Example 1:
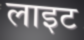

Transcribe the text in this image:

लाइट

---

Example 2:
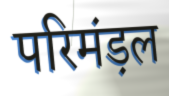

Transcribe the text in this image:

परिमंड़ल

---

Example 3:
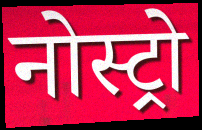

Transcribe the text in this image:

नोस्ट्रो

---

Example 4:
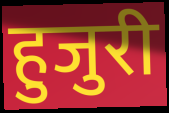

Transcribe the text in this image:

हुजुरी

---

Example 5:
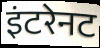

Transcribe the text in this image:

इंटरेनट